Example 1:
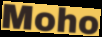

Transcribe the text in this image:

Moho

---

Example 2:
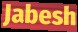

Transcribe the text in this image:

Jabesh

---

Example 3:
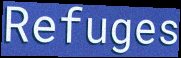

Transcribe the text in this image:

Refuges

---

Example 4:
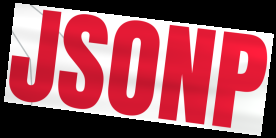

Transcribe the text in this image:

JSONP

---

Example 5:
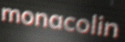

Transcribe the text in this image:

monacolin